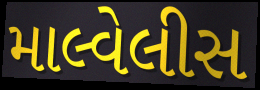
માલ્વેલીસ